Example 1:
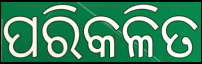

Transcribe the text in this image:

ପରିକଳିତ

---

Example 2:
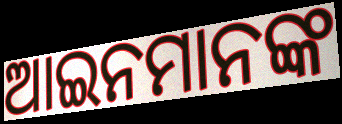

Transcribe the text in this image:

ଆଇନମାନଙ୍କ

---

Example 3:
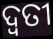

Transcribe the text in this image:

ଦ୍ଵତୀ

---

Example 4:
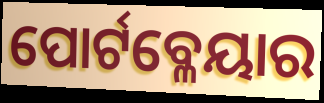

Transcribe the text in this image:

ପୋର୍ଟବ୍ଳେୟାର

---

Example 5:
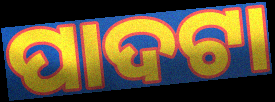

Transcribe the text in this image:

ପାଦଟା